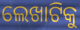
ଲେଖାଟିକୁ